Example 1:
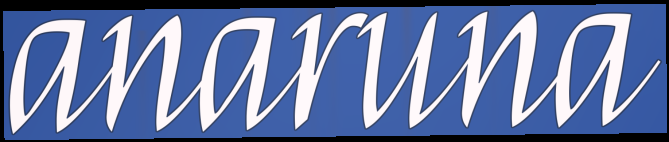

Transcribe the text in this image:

anaruna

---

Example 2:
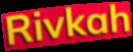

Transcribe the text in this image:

Rivkah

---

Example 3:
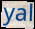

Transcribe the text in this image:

yal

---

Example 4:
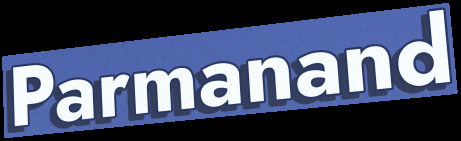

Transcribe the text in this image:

Parmanand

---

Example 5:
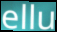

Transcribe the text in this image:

ellu